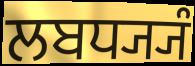
ਲਬਧ੍ਯ੍ਯੰ